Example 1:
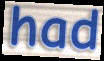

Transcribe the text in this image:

had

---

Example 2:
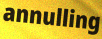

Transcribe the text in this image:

annulling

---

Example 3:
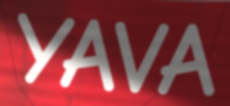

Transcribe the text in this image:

YAVA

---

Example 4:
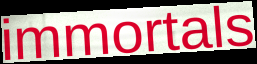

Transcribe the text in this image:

immortals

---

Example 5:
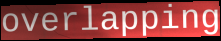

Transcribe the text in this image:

overlapping